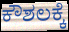
ಕೌಶಲಕ್ಕೆ